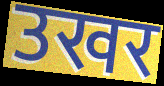
उखर